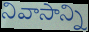
నివాసాన్ని